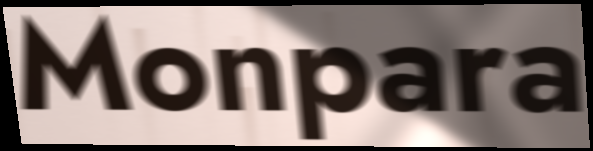
Monpara